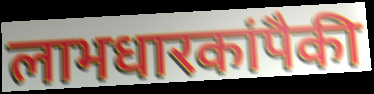
लाभधारकांपैकी